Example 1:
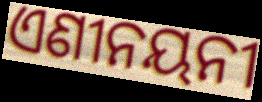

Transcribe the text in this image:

ଏଣୀନୟନୀ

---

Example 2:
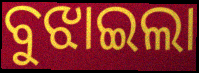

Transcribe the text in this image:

ବୁଝାଇଲା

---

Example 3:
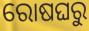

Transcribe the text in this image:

ରୋଷଘରୁ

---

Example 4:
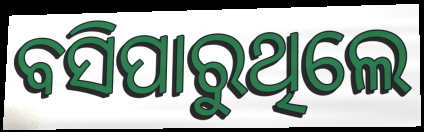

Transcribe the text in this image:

ବସିପାରୁଥିଲେ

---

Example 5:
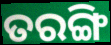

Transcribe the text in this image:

ତରଙ୍ଗି